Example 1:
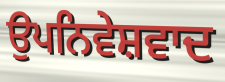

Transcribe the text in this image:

ਉਪਨਿਵੇਸ਼ਵਾਦ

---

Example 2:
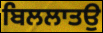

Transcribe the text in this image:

ਬਿਲਲਾਤਉ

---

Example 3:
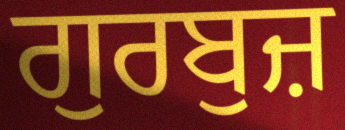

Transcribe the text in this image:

ਗੁਰਬੁਜ਼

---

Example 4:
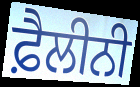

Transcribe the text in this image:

ਫ਼ੈਲੀਨੀ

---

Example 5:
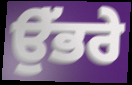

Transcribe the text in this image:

ਉੱਭਰੇ